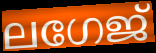
ലഗേജ്